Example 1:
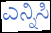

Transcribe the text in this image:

ಎನ್ನಿಸಿ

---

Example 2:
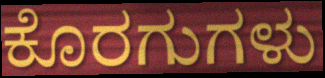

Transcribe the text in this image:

ಕೊರಗುಗಳು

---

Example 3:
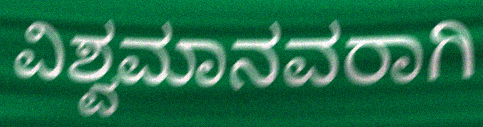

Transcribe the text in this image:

ವಿಶ್ವಮಾನವರಾಗಿ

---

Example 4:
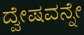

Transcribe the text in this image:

ದ್ವೇಷವನ್ನೇ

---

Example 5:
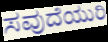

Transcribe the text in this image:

ಸವುದೆಯುರಿ